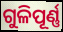
ଗୁଳିପୂର୍ଣ୍ଣ